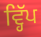
ਵ੍ਹਿੱਪ